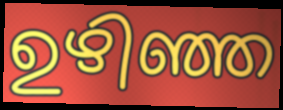
ഉഴിഞ്ഞ